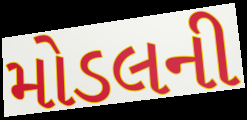
મોડલની